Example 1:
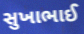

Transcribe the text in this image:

સુખાભાઈ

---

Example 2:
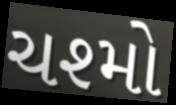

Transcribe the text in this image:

ચશ્મો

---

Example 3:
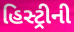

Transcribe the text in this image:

હિસ્ટ્રીની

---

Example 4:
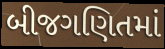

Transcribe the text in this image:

બીજગણિતમાં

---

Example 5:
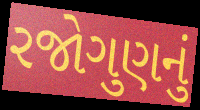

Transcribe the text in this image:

રજોગુણનું